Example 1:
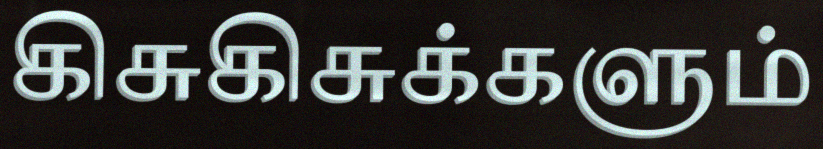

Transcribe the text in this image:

கிசுகிசுக்களும்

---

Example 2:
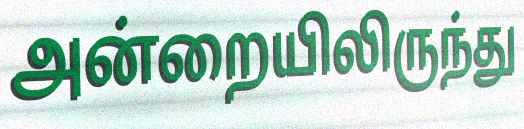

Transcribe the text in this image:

அன்றையிலிருந்து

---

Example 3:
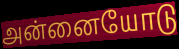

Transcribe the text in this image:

அன்னையோடு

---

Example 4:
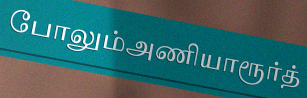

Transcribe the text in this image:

போலும்அணியாரூர்த்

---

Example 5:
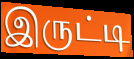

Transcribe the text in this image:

இருட்டி